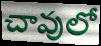
చావులో